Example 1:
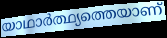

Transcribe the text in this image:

യാഥാർത്ഥ്യത്തെയാണ്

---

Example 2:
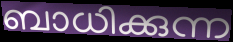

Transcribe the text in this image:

ബാധിക്കുന്ന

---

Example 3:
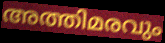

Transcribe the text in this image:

അത്തിമരവും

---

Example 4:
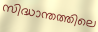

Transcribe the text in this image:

സിദ്ധാന്തത്തിലെ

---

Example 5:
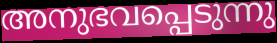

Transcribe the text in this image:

അനുഭവപ്പെടുന്നു